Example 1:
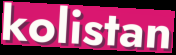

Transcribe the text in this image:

kolistan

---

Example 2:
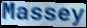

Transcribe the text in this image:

Massey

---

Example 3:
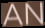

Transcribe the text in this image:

AN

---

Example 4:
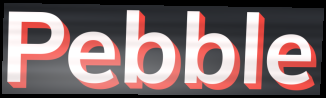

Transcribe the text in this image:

Pebble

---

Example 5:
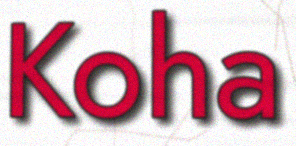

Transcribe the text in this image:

Koha